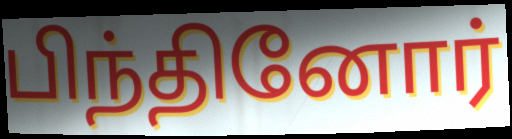
பிந்தினோர்